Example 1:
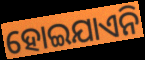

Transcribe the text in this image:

ହୋଇଯାଏନି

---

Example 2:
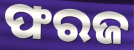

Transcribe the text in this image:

ଫରଜ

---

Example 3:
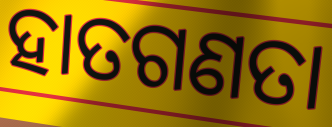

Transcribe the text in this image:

ହାତଗଣତା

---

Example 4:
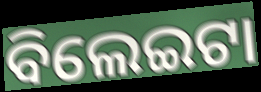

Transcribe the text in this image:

ବିଲେଇଟା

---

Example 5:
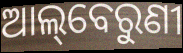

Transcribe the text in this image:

ଆଲ୍‌ବେରୁଣୀ